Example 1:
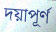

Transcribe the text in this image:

দয়াপূর্ণ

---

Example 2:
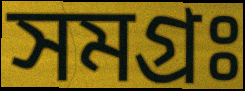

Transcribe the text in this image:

সমগ্রঃ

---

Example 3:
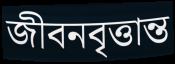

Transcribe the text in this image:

জীবনবৃত্তান্ত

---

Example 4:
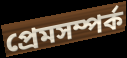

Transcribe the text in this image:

প্রেমসম্পর্ক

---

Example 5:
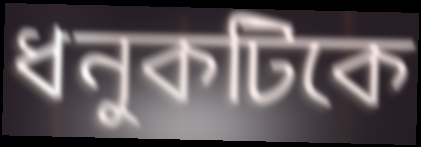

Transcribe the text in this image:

ধনুকটিকে